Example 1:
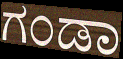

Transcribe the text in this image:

ಗಂಡಾ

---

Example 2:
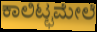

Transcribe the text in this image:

ಕಾಲಿಟ್ಟಮೇಲೆ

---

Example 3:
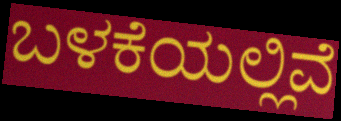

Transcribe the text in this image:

ಬಳಕೆಯಲ್ಲಿವೆ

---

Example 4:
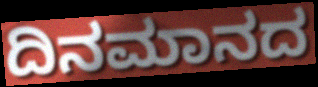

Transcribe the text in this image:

ದಿನಮಾನದ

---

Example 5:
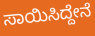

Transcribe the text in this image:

ಸಾಯಿಸಿದ್ದೇನೆ